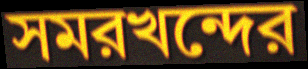
সমরখন্দের